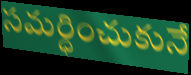
సమర్ధించుకునే